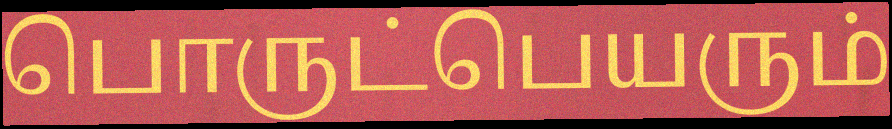
பொருட்பெயரும்